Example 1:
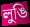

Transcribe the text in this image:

লুঙি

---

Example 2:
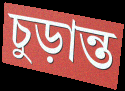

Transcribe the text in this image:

চুড়ান্ত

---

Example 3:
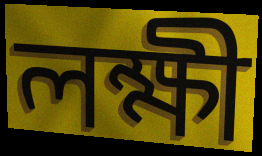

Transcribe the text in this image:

লক্ষী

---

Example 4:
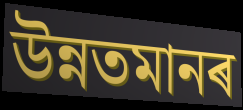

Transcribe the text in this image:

উন্নতমানৰ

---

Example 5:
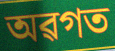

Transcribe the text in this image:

অৱগত